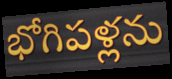
భోగిపళ్లను